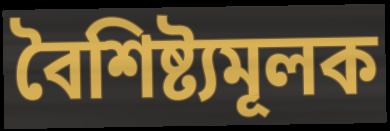
বৈশিষ্ট্যমূলক